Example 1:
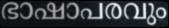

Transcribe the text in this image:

ഭാഷാപരവും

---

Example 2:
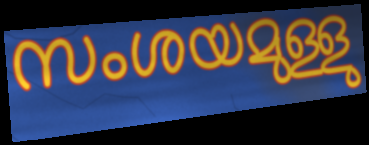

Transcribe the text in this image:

സംശയമുള്ളു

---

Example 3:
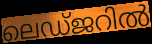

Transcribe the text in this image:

ലെഡ്ജറിൽ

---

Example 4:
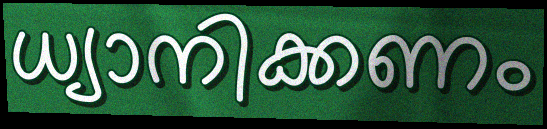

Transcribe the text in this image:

ധ്യാനിക്കണം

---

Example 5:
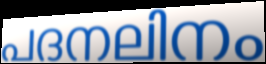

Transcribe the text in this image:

പദനലിനം